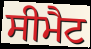
ਸੀਮੈਟ